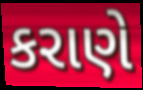
કરાણે